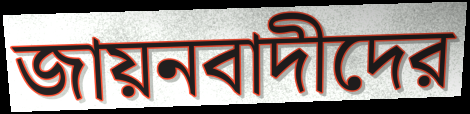
জায়নবাদীদের